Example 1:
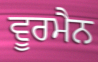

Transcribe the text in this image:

ਵੂਰਮੈਨ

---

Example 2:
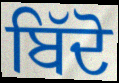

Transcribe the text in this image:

ਬਿੱਦੋ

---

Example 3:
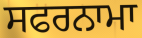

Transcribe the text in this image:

ਸਫਰਨਾਮਾ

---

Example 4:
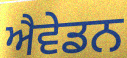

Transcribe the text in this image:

ਐਵੇਡਨ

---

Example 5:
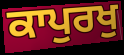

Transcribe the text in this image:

ਕਾਪੁਰਖੁ